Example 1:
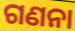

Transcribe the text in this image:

ଗଣନା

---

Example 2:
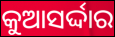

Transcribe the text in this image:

କୁଆସର୍ଦ୍ଦାର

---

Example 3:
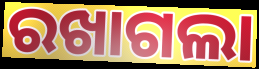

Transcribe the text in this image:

ରଖାଗଲା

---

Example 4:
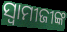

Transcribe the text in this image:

ସ୍ୱାମୀଜୀଙ୍କ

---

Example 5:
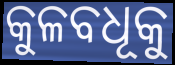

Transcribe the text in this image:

କୁଳବଧୂକୁ